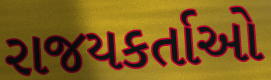
રાજયકર્તાઓ